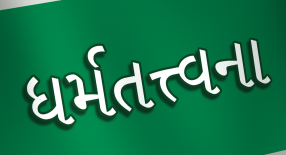
ધર્મતત્ત્વના